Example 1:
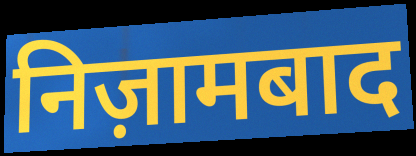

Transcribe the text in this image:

निज़ामबाद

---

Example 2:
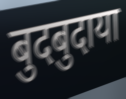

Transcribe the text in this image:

बुदबुदाया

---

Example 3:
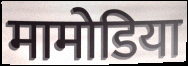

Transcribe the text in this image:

मामोडिया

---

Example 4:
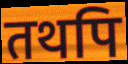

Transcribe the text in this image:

तथपि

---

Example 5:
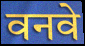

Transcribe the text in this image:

वनवे